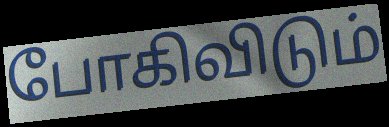
போகிவிடும்